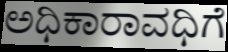
ಅಧಿಕಾರಾವಧಿಗೆ